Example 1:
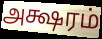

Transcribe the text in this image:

அக்ஷரம்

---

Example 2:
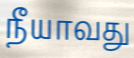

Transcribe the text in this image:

நீயாவது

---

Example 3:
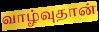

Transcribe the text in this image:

வாழ்வுதான்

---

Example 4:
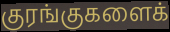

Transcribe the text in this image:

குரங்குகளைக்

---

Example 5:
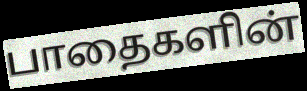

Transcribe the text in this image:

பாதைகளின்